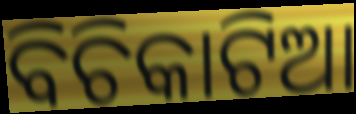
ବିଚିକାଟିଆ